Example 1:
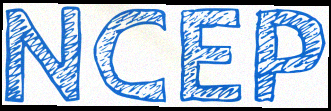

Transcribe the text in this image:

NCEP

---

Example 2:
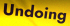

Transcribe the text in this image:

Undoing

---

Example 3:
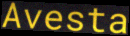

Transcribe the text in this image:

Avesta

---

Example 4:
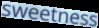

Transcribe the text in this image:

sweetness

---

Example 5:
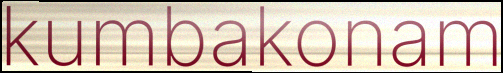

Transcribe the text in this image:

kumbakonam